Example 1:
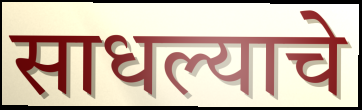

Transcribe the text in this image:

साधल्याचे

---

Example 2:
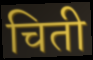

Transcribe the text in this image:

चिती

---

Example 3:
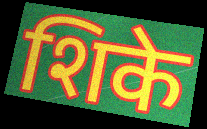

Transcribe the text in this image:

शिके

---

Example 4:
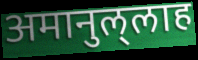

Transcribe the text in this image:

अमानुल्लाह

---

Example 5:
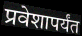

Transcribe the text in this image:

प्रवेशापर्यंत